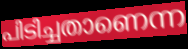
പിടിച്ചതാണെന്ന